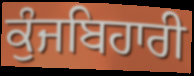
ਕੁੰਜਬਿਹਾਰੀ